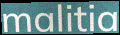
malitia